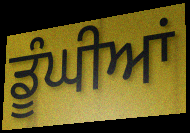
ਡੂੰਘੀਆਂ